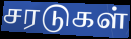
சரடுகள்